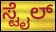
ಸ್ಟೈಲ್